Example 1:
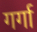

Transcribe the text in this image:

गर्गा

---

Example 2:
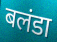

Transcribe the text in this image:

बलंडा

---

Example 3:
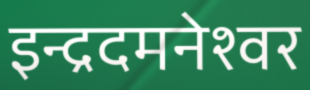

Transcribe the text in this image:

इन्द्रदमनेश्वर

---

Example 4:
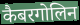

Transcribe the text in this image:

कैबरगोलिन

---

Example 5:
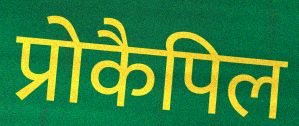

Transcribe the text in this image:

प्रोकैपिल